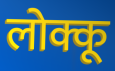
लोक्कू